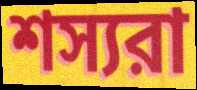
শস্যরা